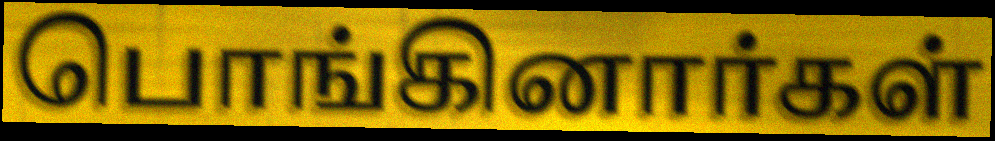
பொங்கினார்கள்